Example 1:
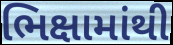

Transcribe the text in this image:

ભિક્ષામાંથી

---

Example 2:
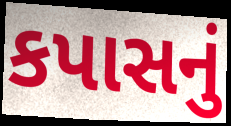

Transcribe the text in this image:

કપાસનું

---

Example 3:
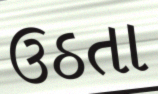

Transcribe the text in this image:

ઉઠતા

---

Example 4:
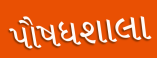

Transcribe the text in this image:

પૌષધશાલા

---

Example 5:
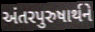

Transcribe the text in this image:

અંતરપુરુષાર્થને